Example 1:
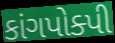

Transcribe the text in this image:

કાંગપોક્પી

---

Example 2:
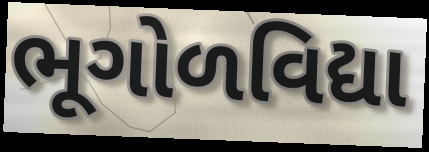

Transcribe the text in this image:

ભૂગોળવિદ્યા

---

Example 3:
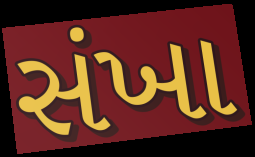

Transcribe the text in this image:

સંખા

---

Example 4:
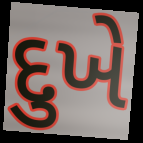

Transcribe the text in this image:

દુખે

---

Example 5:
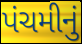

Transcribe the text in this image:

પંચમીનું